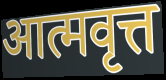
आत्मवृत्त